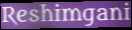
Reshimgani